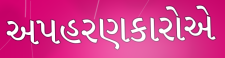
અપહરણકારોએ